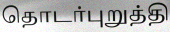
தொடர்புறுத்தி